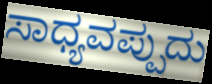
ಸಾಧ್ಯವಪ್ಪುದು